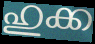
ഹുക്ക